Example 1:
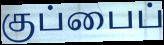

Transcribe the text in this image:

குப்பைப்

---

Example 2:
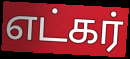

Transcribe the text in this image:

எட்கர்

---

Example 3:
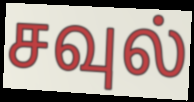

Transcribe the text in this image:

சவுல்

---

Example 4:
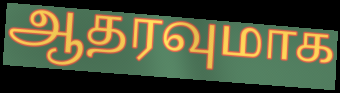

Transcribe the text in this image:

ஆதரவுமாக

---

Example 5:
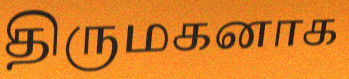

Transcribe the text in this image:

திருமகனாக